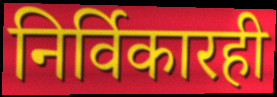
निर्विकारही